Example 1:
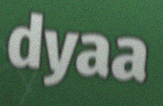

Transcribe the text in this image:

dyaa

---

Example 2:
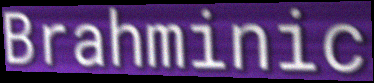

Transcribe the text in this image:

Brahminic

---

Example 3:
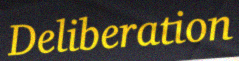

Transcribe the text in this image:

Deliberation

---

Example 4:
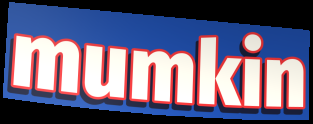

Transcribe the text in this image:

mumkin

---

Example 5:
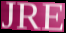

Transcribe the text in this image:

JRE